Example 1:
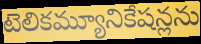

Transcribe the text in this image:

టెలికమ్యూనికేషన్లను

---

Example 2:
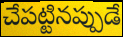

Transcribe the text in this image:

చేపట్టినప్పుడే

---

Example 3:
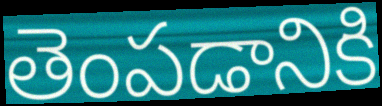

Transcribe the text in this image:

తెంపడానికి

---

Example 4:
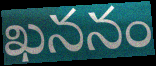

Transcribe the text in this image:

ఖననం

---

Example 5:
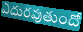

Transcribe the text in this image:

ఎదురవుతుందో